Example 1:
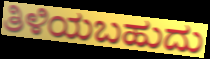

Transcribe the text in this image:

ತಿಳಿಯಬಹುದು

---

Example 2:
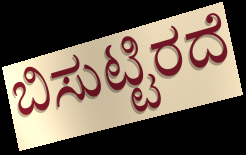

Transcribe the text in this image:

ಬಿಸುಟ್ಟಿರದೆ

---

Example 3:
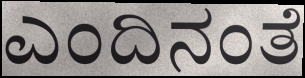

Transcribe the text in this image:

ಎಂದಿನಂತೆ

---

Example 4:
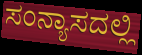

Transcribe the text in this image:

ಸಂನ್ಯಾಸದಲ್ಲಿ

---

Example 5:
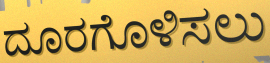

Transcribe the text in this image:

ದೂರಗೊಳಿಸಲು